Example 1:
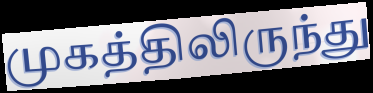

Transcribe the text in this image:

முகத்திலிருந்து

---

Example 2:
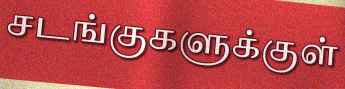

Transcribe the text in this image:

சடங்குகளுக்குள்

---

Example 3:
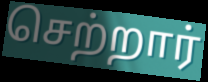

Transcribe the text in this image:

செற்றார்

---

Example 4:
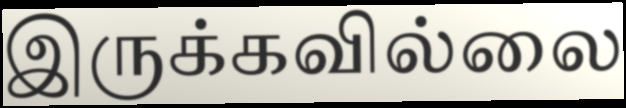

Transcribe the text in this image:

இருக்கவில்லை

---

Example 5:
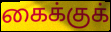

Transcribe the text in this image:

கைக்குக்